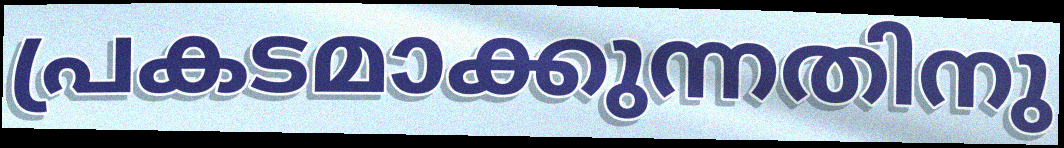
പ്രകടമാക്കുന്നതിനു